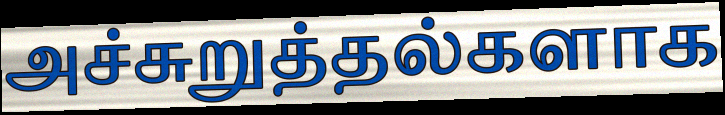
அச்சுறுத்தல்களாக